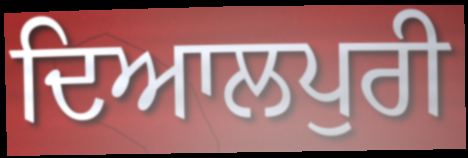
ਦਿਆਲਪੁਰੀ